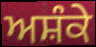
ਅਸ਼ੰਕੇ